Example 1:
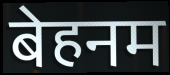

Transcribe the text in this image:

बेहनम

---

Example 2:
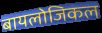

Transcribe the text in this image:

बायलोजिकल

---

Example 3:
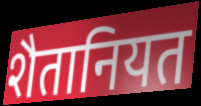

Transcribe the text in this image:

शैतानियत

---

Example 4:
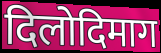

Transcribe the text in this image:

दिलोदिमाग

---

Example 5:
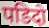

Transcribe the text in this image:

पडिदो